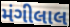
મંગીલાલ